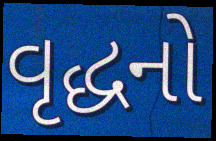
વૃદ્ધનો